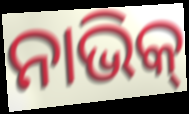
ନାଭିକ୍